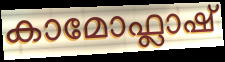
കാമോഫ്ലാഷ്